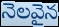
నెలవైన